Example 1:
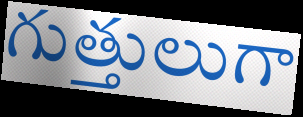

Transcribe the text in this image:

గుత్తులుగా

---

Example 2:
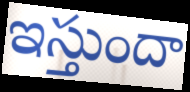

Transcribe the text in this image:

ఇస్తుందా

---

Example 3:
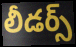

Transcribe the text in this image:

లీడర్స్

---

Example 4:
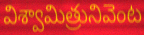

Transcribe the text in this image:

విశ్వామిత్రునివెంట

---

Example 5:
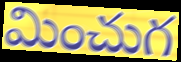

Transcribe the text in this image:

మించుగ